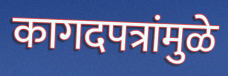
कागदपत्रांमुळे